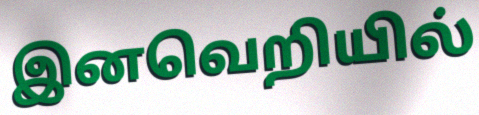
இனவெறியில்